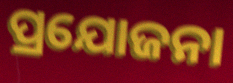
ପ୍ରଯୋଜନା